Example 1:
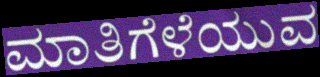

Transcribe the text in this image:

ಮಾತಿಗೆಳೆಯುವ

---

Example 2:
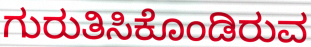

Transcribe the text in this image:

ಗುರುತಿಸಿಕೊಂಡಿರುವ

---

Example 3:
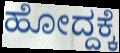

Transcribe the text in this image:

ಹೋದ್ದಕ್ಕೆ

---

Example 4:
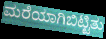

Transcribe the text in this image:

ಮರೆಯಾಗಿಬಿಟ್ಟಿತು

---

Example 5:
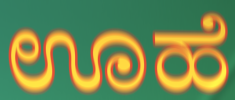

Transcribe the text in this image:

ಊಹೆ